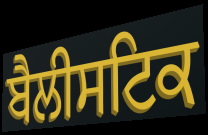
ਬੈਲੀਸਟਿਕ